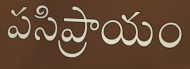
పసిప్రాయం